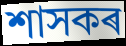
শাসকৰ